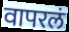
वापरलं